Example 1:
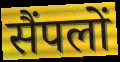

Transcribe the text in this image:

सैंपलों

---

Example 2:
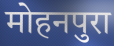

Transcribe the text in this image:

मोहनपुरा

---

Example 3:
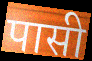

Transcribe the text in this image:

पासी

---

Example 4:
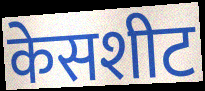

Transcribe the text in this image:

केसशीट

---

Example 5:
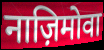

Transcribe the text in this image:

नाज़िमोवा